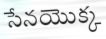
సేనయొక్క